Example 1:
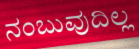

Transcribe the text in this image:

ನಂಬುವುದಿಲ್ಲ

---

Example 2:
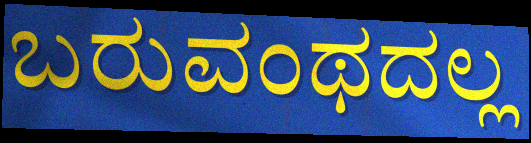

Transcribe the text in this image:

ಬರುವಂಥದಲ್ಲ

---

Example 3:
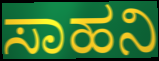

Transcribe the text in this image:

ಸಾಹನಿ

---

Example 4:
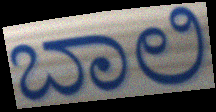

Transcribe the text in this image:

ಬಾಲಿ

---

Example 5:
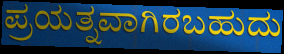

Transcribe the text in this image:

ಪ್ರಯತ್ನವಾಗಿರಬಹುದು